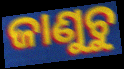
ଜାଣୁଚୁ